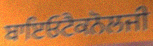
ਬਾਇਓਟੈਕਨੋਲਜੀ